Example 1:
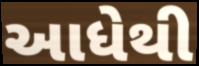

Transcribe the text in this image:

આધેથી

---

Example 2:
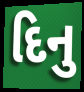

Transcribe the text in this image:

દિનુ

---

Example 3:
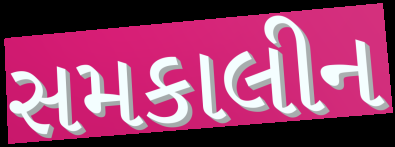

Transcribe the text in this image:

સમકાલીન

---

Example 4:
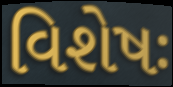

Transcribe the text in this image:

વિશેષઃ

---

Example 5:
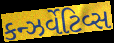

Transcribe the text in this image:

કન્ઝર્વેટિવ્સ